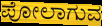
ಪೋಲಾಗುವ